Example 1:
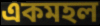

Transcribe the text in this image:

একমহল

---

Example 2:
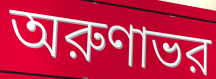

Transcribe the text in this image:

অরুণাভর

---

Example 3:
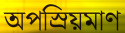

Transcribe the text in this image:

অপস্রিয়মাণ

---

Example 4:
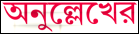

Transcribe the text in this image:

অনুল্লেখের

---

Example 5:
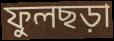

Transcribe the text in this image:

ফুলছড়া